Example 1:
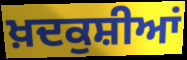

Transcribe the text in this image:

ਖ਼ਦਕੁਸ਼ੀਆਂ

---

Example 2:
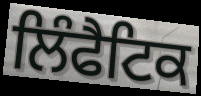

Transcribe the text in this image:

ਲਿੰਫੈਟਿਕ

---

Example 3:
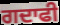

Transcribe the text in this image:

ਗਦਾਫੀ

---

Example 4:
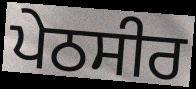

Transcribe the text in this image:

ਪੇਠਸੀਰ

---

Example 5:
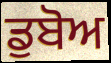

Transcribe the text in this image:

ਡੁਬੋਅ